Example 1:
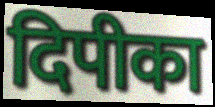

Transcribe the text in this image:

दिपीका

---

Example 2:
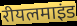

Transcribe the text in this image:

रीयलमाइंड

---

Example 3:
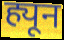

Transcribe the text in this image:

ह्यून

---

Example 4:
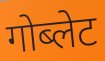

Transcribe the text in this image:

गोब्लेट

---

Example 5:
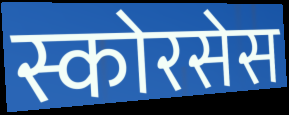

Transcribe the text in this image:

स्कोरसेस